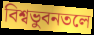
বিশ্বভুবনতলে